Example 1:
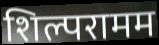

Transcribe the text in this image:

शिल्परामम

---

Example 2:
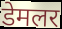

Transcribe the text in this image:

डेमलर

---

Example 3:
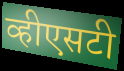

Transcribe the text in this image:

व्हीएसटी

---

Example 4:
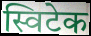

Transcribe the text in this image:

स्विटेक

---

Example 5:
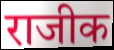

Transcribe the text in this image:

राजीक